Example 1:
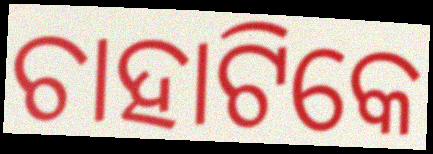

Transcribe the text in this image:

ଚାହାଟିକେ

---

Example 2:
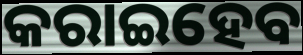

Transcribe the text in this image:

କରାଇହେବ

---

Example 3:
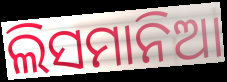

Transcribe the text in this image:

ଲିସମାନିଆ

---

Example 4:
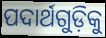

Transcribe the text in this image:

ପଦାର୍ଥଗୁଡ଼ିକୁ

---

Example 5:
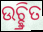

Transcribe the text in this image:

ଉଚ୍ଛ୍ରିତ